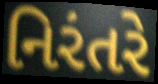
નિરંતરે